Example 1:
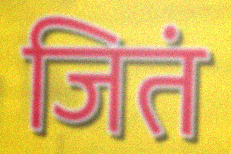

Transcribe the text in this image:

जितं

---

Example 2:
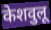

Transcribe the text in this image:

केशवुलू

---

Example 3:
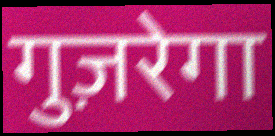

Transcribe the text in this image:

गुज़रेगा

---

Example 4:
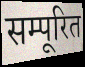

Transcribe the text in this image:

सम्पूरित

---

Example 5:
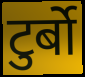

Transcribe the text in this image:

टुर्बो